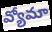
వ్యోమా